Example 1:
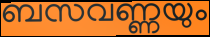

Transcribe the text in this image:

ബസവണ്ണയും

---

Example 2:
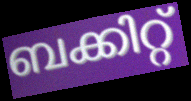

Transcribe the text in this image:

ബക്കിറ്റ്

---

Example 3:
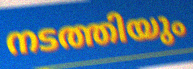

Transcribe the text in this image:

നടത്തിയും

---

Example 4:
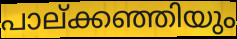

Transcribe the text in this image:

പാല്ക്കഞ്ഞിയും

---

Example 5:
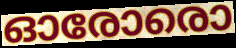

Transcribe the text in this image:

ഓരോരൊ